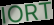
IORT